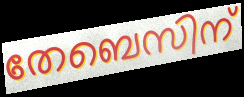
തേബെസിന്